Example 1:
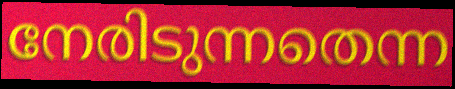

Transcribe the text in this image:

നേരിടുന്നതെന്ന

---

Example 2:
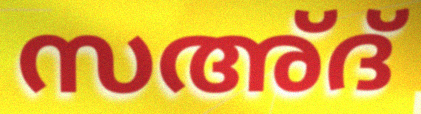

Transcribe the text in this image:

സഅ്ദ്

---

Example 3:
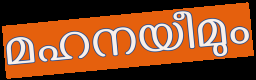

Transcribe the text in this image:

മഹനയീമും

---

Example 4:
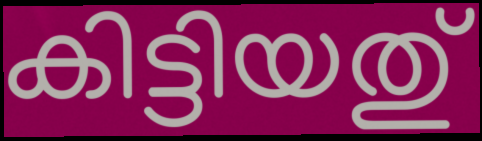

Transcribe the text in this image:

കിട്ടിയതു്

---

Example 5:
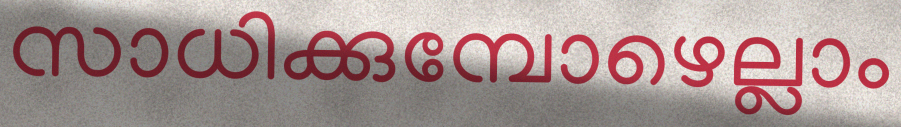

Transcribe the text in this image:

സാധിക്കുമ്പോഴെല്ലാം